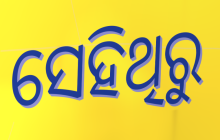
ସେହିଥିରୁ